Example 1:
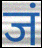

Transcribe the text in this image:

जं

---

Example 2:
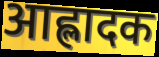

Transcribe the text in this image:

आह्लादक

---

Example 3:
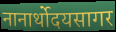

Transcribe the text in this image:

नानार्थोदयसागर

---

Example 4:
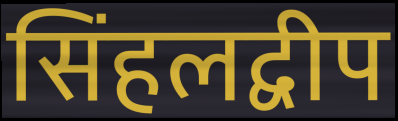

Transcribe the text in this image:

सिंहलद्वीप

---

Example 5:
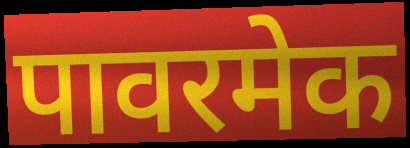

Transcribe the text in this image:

पावरमेक